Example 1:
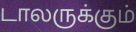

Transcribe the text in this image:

டாலருக்கும்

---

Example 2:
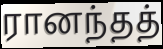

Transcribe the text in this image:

ரானந்தத்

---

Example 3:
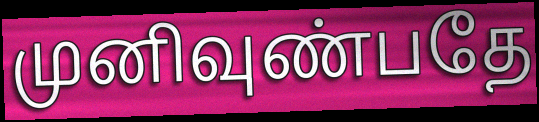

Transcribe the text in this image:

முனிவுண்பதே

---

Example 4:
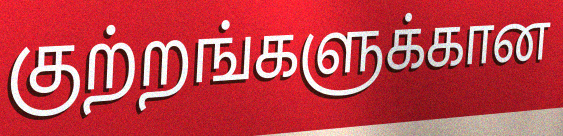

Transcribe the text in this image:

குற்றங்களுக்கான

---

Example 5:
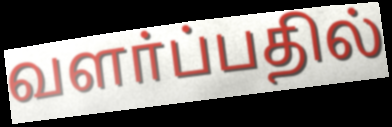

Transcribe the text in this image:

வளர்ப்பதில்